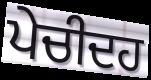
ਪੇਚੀਦਹ